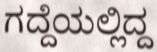
ಗದ್ದೆಯಲ್ಲಿದ್ದ